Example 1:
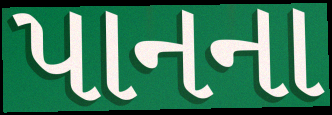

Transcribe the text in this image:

પાનના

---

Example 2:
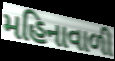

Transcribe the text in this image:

મહિનાવાળી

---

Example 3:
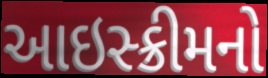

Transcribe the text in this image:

આઇસ્ક્રીમનો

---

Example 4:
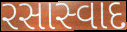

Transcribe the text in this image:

રસાસ્વાદ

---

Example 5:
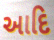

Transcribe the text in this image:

આદિ